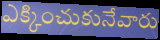
ఎక్కించుకునేవారు